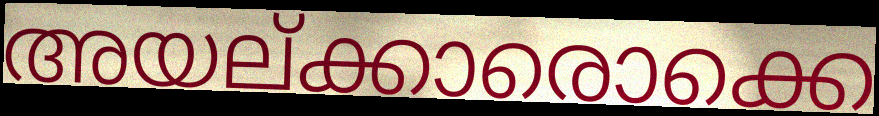
അയല്ക്കാരൊക്കെ